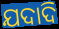
ଯଦାଦି